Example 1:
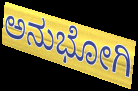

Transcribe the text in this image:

ಅನುಭೋಗಿ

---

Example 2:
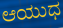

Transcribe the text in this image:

ಆಯುಧ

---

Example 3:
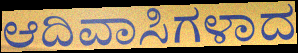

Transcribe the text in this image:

ಆದಿವಾಸಿಗಳಾದ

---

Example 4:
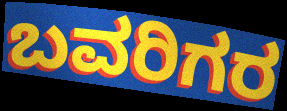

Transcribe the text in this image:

ಬವರಿಗರ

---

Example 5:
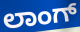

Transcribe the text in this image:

ಲಾಂಗ್